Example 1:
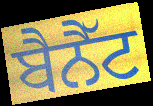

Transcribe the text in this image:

ਬੈਨੈੱਟ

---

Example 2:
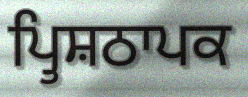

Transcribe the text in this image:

ਪ੍ਤਿਸ਼ਠਾਪਕ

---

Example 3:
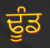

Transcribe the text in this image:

ਢੂੰਡ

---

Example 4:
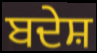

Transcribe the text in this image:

ਬਦੇਸ਼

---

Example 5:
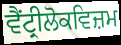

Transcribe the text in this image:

ਵੈਂਟ੍ਰੀਲੋਕਵਿਜ਼ਮ